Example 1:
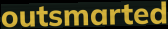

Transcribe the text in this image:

outsmarted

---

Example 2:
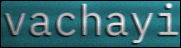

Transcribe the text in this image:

vachayi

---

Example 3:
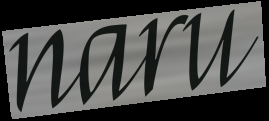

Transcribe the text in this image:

naru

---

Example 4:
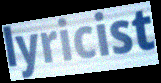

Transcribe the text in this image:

lyricist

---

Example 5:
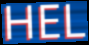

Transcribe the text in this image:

HEL